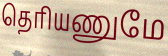
தெரியணுமே